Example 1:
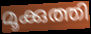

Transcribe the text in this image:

മൂക്കുത്തി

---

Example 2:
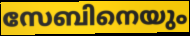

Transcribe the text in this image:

സേബിനെയും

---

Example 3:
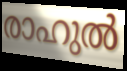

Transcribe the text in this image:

രാഹുൽ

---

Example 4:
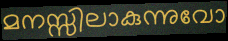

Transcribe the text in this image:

മനസ്സിലാകുന്നുവോ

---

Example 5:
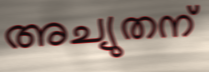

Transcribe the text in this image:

അച്യുതന്